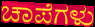
ಚಾಪೆಗಳು